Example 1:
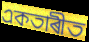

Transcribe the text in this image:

একতাৰীত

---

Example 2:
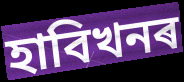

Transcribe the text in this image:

হাবিখনৰ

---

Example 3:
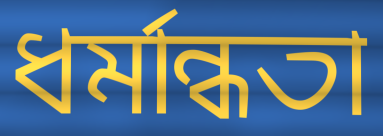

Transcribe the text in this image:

ধৰ্মান্ধতা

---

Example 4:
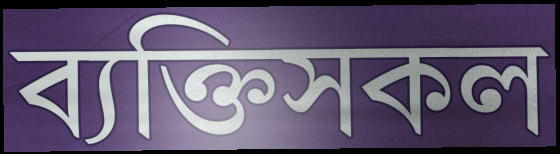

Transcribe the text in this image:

ব্যক্তিসকল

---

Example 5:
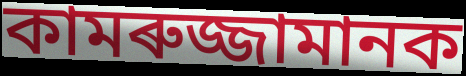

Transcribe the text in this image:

কামৰুজ্জামানক